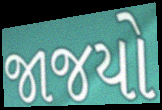
જાજયો